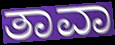
ತಾವಾ